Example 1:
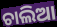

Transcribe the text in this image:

ଚାଲିଆ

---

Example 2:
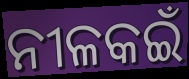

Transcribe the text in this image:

ନୀଳକଇଁ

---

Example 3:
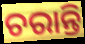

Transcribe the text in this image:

ଚରାନ୍ତି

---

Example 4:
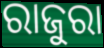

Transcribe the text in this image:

ରାଜୁରା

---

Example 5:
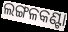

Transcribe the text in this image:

ଲଙ୍ଗଳକଣ୍ଟା